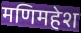
मणिमहेश